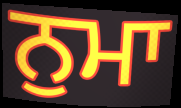
ਨੁਮਾ